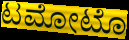
ಟಮೋಟೊ